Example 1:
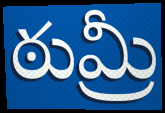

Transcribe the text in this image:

ఠుమ్రీ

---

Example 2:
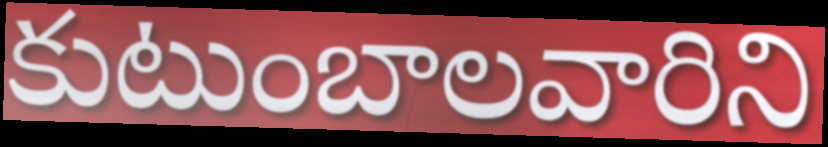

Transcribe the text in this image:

కుటుంబాలవారిని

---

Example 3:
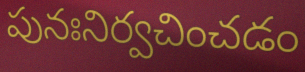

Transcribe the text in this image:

పునఃనిర్వచించడం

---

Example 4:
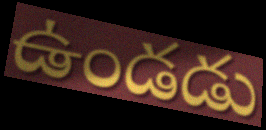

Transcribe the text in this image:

ఉండడు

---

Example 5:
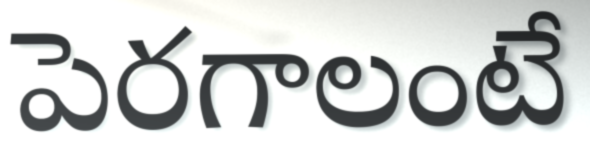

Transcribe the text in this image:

పెరగాలంటే